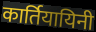
कार्तियायिनी